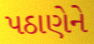
પઠાણેને